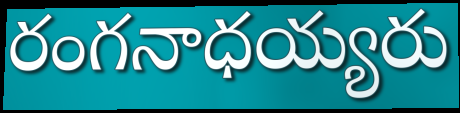
రంగనాధయ్యరు